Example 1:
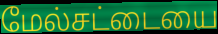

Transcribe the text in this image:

மேல்சட்டையை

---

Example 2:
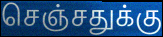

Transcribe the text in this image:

செஞ்சதுக்கு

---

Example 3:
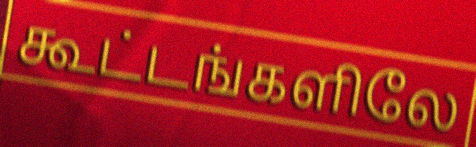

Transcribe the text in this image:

கூட்டங்களிலே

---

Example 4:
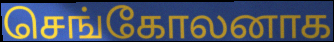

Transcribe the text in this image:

செங்கோலனாக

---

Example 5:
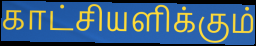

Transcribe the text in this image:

காட்சியளிக்கும்